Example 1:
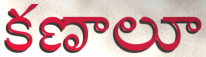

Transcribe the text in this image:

కణాలూ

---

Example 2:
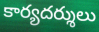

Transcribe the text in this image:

కార్యదర్శులు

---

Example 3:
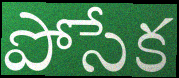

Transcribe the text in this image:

పోసేక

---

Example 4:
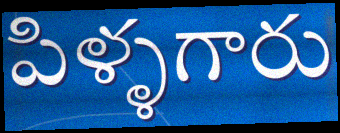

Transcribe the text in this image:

పిళ్ళగారు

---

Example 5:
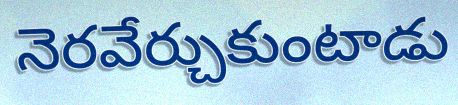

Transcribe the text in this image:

నెరవేర్చుకుంటాడు